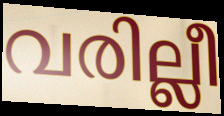
വരില്ലീ